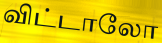
விட்டாலோ